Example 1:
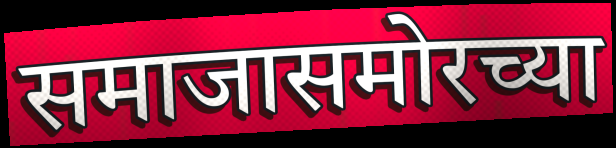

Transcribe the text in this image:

समाजासमोरच्या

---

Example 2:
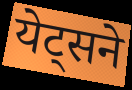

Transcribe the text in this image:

येट्सने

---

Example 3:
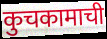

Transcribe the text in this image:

कुचकामाची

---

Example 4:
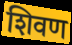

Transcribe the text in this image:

शिवण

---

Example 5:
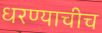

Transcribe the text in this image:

धरण्याचीच